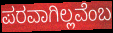
ಪರವಾಗಿಲ್ಲವೆಂಬ